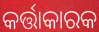
କର୍ତ୍ତାକାରକ